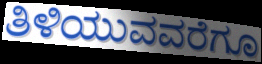
ತಿಳಿಯುವವರೆಗೂ